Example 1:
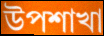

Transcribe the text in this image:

উপশাখা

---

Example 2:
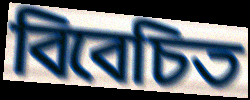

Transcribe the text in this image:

বিবেচিত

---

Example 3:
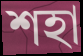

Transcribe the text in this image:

শহা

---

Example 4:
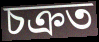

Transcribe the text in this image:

চক্ৰত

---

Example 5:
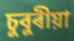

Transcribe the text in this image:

চুবুৰীয়া